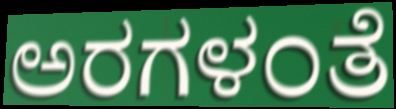
ಅರಗಳಂತೆ